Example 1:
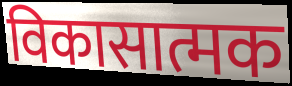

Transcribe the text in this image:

विकासात्मक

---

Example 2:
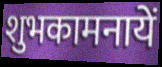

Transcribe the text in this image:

शुभकामनायें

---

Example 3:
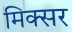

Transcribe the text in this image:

मिक्‍सर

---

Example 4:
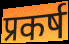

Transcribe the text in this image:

प्रकर्ष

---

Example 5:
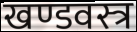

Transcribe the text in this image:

खण्डवस्त्र